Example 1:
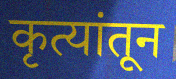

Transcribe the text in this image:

कृत्यांतून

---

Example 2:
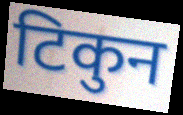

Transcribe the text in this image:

टिकुन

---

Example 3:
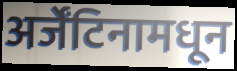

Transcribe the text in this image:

अर्जेंटिनामधून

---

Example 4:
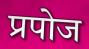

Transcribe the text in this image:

प्रपोज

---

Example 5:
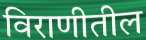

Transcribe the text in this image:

विराणीतील